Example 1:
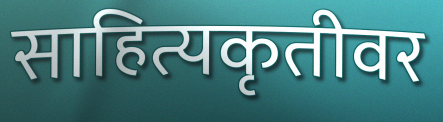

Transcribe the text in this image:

साहित्यकृतीवर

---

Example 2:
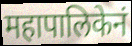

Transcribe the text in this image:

महापालिकेनं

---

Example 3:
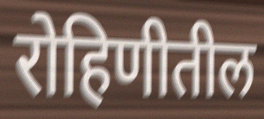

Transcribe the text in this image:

रोहिणीतील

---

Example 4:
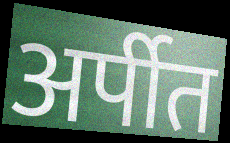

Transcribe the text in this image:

अर्पीत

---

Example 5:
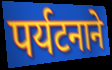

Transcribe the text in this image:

पर्यटनाने